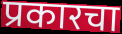
प्रकारचा